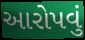
આરોપવું